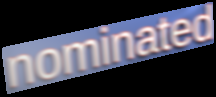
nominated